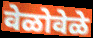
वेळोवेळे